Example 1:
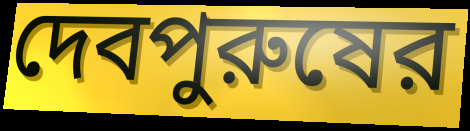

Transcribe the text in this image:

দেবপুরুষের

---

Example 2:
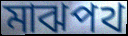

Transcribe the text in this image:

মাঝপথ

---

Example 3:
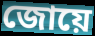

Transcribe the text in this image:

জোয়ে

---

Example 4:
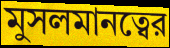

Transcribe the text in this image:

মুসলমানত্বের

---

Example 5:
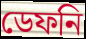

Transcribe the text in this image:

ডেফনি